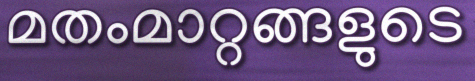
മതംമാറ്റങ്ങളുടെ